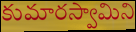
కుమారస్వామిని